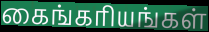
கைங்கரியங்கள்